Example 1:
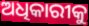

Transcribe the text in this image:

ଅଧିକାରୀକୁ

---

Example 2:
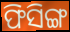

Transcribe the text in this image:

ଫିସିଙ୍ଗ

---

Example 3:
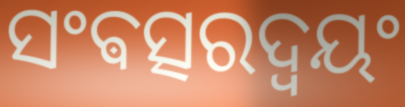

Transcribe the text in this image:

ସଂଵତ୍ସରଦ୍ଵୟଂ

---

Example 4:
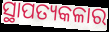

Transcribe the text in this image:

ସ୍ଥାପତ୍ୟକଳାର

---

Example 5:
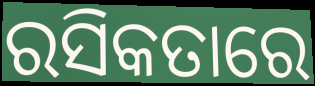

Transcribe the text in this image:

ରସିକତାରେ